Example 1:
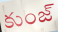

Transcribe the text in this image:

కుంజ్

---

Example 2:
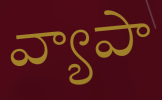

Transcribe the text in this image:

వ్యాపా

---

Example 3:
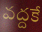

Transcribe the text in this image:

వద్దకే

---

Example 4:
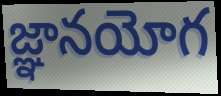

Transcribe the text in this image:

జ్ఞానయోగ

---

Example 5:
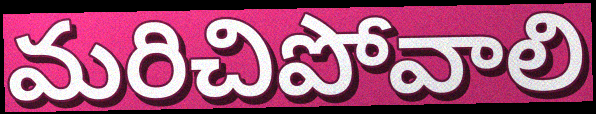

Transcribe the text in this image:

మరిచిపోవాలి